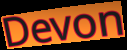
Devon